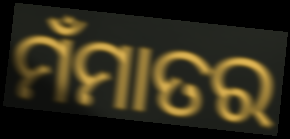
ମଁମାତର